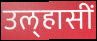
उल्हासीं